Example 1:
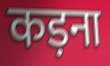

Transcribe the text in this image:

कड़ना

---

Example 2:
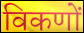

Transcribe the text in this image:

विकणों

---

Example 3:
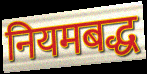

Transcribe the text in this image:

नियमबद्ध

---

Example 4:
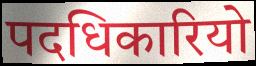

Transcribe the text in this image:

पदधिकारियो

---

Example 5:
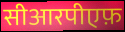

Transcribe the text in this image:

सीआरपीएफ़